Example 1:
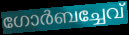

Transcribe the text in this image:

ഗോർബച്ചേവ്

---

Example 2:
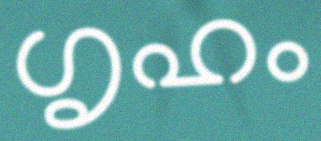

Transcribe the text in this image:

ഗൃഹം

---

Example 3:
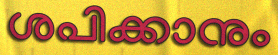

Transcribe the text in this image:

ശപിക്കാനും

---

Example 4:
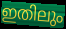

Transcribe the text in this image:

ഇതിലും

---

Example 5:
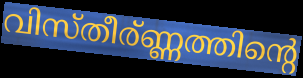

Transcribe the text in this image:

വിസ്തീര്ണ്ണത്തിന്റെ